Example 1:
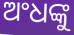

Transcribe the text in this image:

ଅଂଧଙ୍କୁ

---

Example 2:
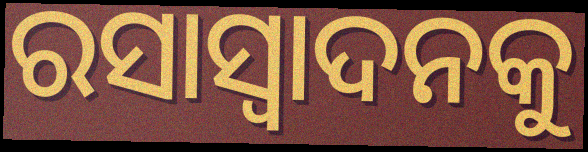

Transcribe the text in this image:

ରସାସ୍ୱାଦନକୁ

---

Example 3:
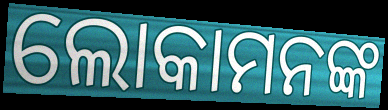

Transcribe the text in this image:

ଲୋକାମନଙ୍କ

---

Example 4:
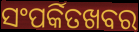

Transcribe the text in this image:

ସଂପର୍କିତଖବର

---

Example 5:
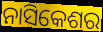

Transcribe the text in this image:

ନାସିକେଶର